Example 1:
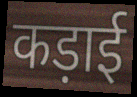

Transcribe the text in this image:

कड़ाई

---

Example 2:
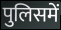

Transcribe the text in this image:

पुलिसमें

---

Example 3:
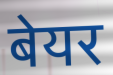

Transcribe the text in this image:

बेयर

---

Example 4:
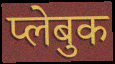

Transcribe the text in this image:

प्लेबुक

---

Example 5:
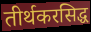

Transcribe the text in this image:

तीर्थकरसिद्ध